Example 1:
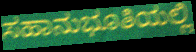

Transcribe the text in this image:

ಸಹಾನುಭೂತಿಯಲ್ಲಿ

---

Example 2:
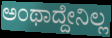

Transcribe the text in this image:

ಅಂಥಾದ್ದೇನಿಲ್ಲ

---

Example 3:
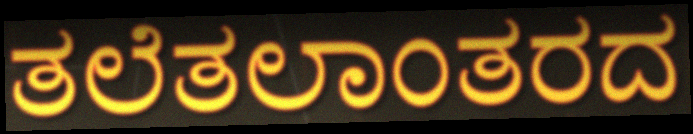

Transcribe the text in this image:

ತಲೆತಲಾಂತರದ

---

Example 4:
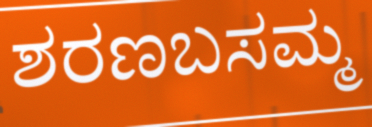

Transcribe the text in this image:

ಶರಣಬಸಮ್ಮ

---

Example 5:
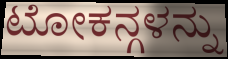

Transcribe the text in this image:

ಟೋಕನ್ಗಳನ್ನು